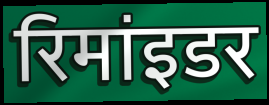
रिमांइडर